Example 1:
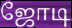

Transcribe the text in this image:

ஜோடி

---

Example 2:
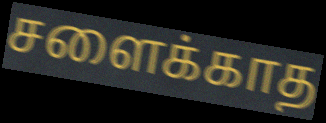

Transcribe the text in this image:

சளைக்காத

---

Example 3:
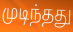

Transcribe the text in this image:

முடிந்தது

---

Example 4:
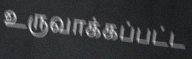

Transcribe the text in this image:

உருவாக்கப்பட்ட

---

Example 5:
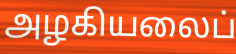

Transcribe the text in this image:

அழகியலைப்